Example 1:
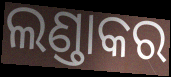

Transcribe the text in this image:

ଲଣ୍ଡାକର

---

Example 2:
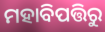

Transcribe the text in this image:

ମହାବିପତ୍ତିରୁ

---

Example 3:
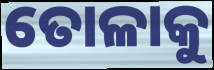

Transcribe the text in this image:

ତୋଳାକୁ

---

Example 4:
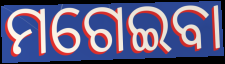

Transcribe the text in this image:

ମଗେଇବା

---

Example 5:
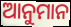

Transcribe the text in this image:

ଆନୁମାନ